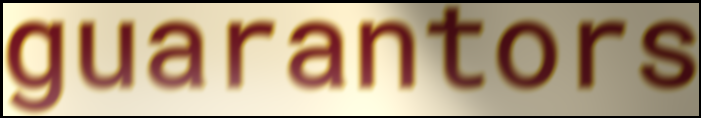
guarantors